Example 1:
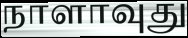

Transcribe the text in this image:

நாளாவுது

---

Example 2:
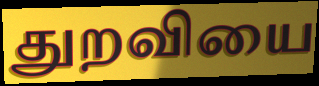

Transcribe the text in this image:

துறவியை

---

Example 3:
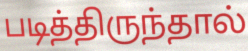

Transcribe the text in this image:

படித்திருந்தால்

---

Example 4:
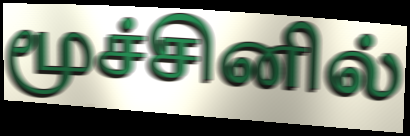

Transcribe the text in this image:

மூச்சினில்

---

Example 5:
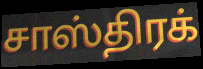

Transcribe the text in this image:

சாஸ்திரக்